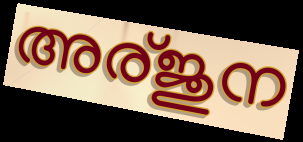
അര്ജുന